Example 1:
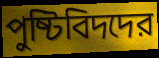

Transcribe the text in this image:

পুষ্টিবিদদের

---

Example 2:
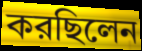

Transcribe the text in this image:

করছিলেন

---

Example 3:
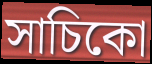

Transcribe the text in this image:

সাচিকো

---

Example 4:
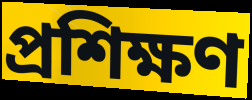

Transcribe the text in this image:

প্রশিক্ষণ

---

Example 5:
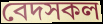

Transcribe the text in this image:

বেদসকল